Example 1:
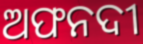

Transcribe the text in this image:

ଅଫନଦୀ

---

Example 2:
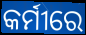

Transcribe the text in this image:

କର୍ମୀରେ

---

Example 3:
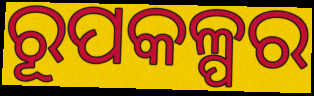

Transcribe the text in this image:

ରୂପକଳ୍ପର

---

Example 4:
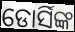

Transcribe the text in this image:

ଡୋର୍ସିଙ୍କ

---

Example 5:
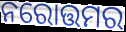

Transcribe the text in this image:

ନରୋତ୍ତମର